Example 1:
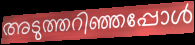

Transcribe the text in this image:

അടുത്തറിഞ്ഞപ്പോൾ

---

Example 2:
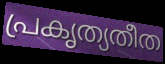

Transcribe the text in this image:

പ്രകൃത്യതീത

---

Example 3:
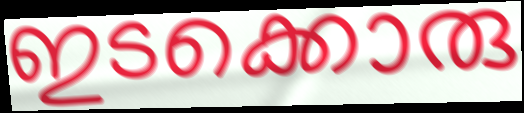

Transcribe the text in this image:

ഇടക്കൊരു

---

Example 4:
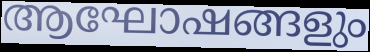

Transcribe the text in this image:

ആഘോഷങ്ങളും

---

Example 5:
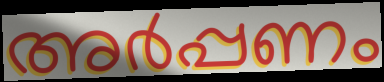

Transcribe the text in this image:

അർപ്പണം